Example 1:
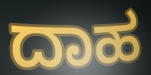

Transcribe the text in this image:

ದಾಹ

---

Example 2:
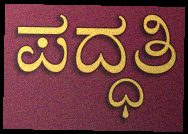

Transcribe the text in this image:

ಪದ್ಧತಿ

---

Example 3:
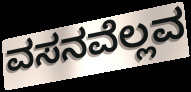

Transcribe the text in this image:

ವಸನವೆಲ್ಲವ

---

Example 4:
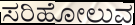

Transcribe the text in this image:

ಸರಿಹೋಲುವ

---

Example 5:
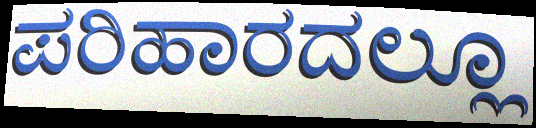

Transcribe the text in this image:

ಪರಿಹಾರದಲ್ಲೂ